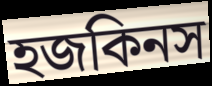
হজকিনস